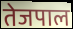
तेजपाल